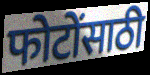
फोटोंसाठी